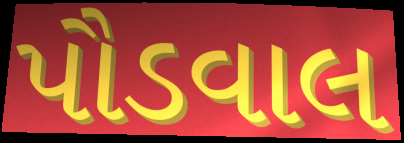
પૌડવાલ